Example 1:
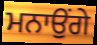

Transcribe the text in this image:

ਮਨਾਉਂਗੇ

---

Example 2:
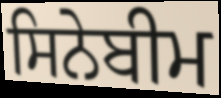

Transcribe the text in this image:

ਸਿਨੇਬੀਮ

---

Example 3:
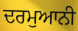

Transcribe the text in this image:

ਦਰਮੁਆਨੀ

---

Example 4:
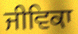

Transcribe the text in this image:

ਜੀਵਿਕਾ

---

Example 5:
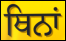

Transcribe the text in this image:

ਥਿਨਾਂ